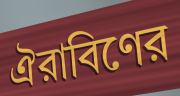
ঐরাবিণের